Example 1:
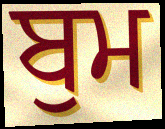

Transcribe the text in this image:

ਬੁਮ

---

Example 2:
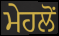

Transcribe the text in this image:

ਮੇਹਲੋਂ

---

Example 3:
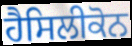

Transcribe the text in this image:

ਹੈਸਿਲੀਕੋਨ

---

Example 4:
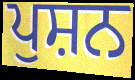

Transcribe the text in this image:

ਪੁਸ਼ਨ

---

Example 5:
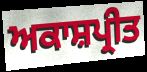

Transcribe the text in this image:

ਅਕਾਸ਼ਪ੍ਰੀਤ